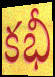
కభీ